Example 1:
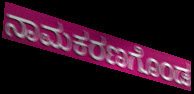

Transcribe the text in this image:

ನಾಮಕರಣಗೊಂಡ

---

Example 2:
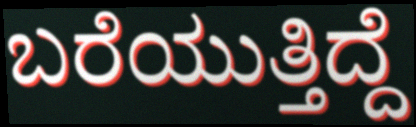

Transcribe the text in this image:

ಬರೆಯುತ್ತಿದ್ದೆ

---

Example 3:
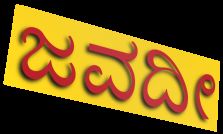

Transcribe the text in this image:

ಜವದೀ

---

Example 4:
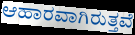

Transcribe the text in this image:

ಆಹಾರವಾಗಿರುತ್ತವೆ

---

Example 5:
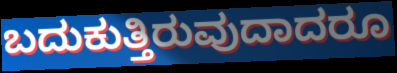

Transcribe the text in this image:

ಬದುಕುತ್ತಿರುವುದಾದರೂ